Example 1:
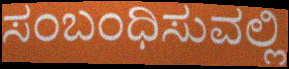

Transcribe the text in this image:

ಸಂಬಂಧಿಸುವಲ್ಲಿ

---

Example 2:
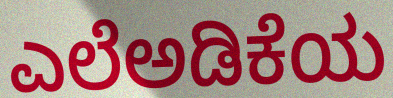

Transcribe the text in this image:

ಎಲೆಅಡಿಕೆಯ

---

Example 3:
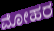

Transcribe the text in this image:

ಮೋಹರ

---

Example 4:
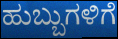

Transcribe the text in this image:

ಹುಬ್ಬುಗಳಿಗೆ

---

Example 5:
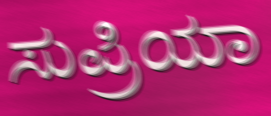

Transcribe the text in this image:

ಸುಪ್ರಿಯಾ